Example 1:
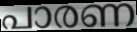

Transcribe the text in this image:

പാരണ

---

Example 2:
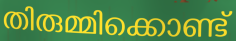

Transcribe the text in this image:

തിരുമ്മിക്കൊണ്ട്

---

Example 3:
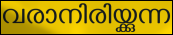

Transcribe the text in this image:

വരാനിരിയ്ക്കുന്ന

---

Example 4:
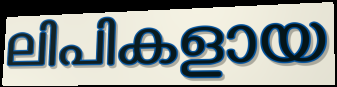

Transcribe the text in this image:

ലിപികളായ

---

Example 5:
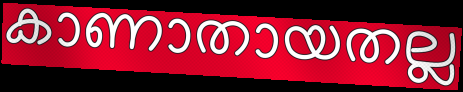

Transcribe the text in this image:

കാണാതായതല്ല